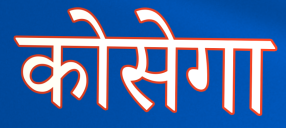
कोसेगा